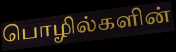
பொழில்களின்